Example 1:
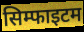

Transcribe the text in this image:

सिम्फाइटम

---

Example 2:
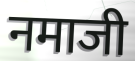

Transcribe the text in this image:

नमाजी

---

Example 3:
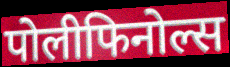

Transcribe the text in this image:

पोलीफिनोल्स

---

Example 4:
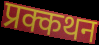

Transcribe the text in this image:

प्रक्कथन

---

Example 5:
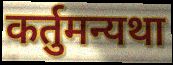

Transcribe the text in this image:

कर्तुमन्यथा